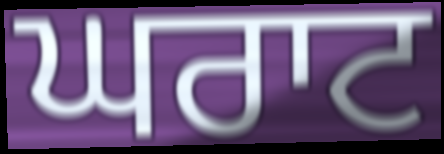
ਘਰਾਟ